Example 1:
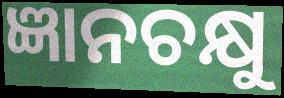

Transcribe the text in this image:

ଜ୍ଞାନଚକ୍ଷୁ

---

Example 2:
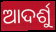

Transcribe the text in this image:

ଆଦର୍ଶୁ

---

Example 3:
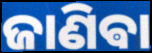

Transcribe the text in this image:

ଜାଣିଵା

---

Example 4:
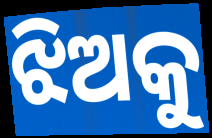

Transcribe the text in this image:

ଝିଅକୁ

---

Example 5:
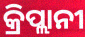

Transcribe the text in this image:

କ୍ରିପ୍ଲାନୀ